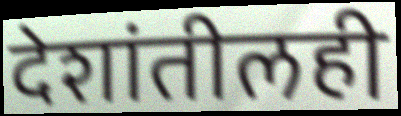
देशांतीलही